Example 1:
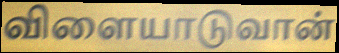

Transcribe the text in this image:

விளையாடுவான்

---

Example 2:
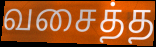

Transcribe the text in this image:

வசைத்த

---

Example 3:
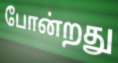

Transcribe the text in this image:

போன்றது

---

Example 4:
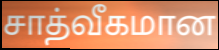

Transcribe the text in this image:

சாத்வீகமான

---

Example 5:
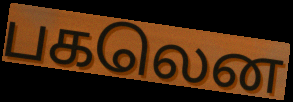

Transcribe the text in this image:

பகலென